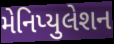
મેનિપ્યુલેશન